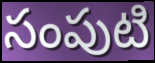
సంపుటి